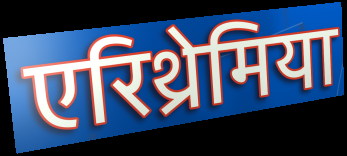
एरिथ्रेमिया